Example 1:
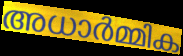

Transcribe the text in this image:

അധാർമ്മിക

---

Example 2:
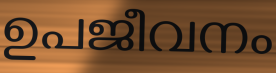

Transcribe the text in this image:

ഉപജീവനം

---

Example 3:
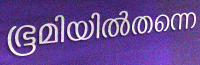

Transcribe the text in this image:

ഭൂമിയിൽതന്നെ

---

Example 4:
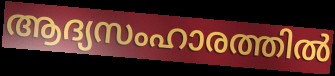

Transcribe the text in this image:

ആദ്യസംഹാരത്തിൽ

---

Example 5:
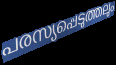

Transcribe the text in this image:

പരസ്യപ്പെടുത്തലും